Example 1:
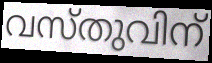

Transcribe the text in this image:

വസ്തുവിന്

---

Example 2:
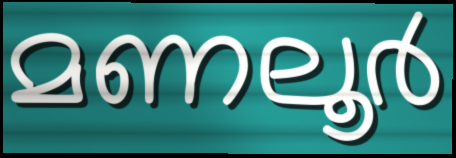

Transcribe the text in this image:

മണലൂർ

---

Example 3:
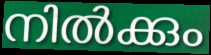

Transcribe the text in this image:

നിൽക്കും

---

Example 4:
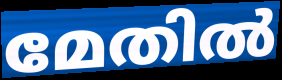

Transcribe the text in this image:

മേതിൽ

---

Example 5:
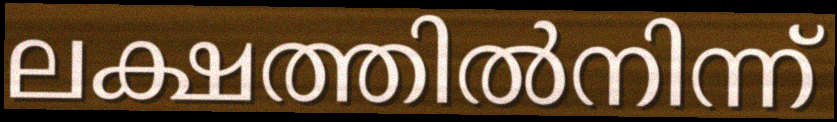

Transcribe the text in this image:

ലക്ഷത്തിൽനിന്ന്